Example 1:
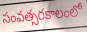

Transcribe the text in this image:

సంవత్సరకాలంలో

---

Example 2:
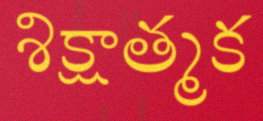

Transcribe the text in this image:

శిక్షాత్మక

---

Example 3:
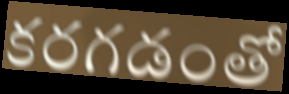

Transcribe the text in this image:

కరగడంతో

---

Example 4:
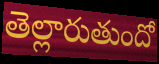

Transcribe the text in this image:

తెల్లారుతుందో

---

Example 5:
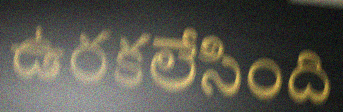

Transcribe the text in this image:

ఉరకలేసింది